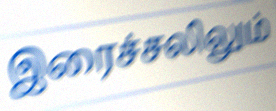
இரைச்சலிலும்